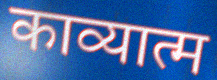
काव्यात्म